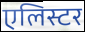
एलिस्टर